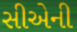
સીએની